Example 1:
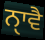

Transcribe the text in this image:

ਨੑਾਵੈ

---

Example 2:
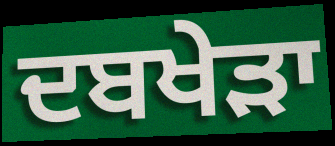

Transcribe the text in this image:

ਦਬਖੇੜਾ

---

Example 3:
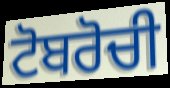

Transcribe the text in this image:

ਟੋਬਰੋਚੀ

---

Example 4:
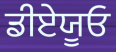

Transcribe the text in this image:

ਡੀਏਯੂਓ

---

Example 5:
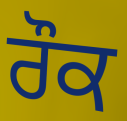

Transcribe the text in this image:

ਰੌਕ